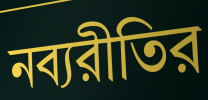
নব্যরীতির